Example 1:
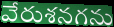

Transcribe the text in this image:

వేరుశనగను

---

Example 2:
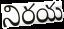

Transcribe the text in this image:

నిరయ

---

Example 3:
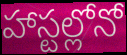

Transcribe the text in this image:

హాస్టల్లోనో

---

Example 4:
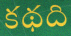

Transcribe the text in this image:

కథది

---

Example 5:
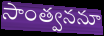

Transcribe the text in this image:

సాంత్వననూ